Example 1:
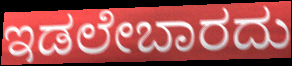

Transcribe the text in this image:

ಇಡಲೇಬಾರದು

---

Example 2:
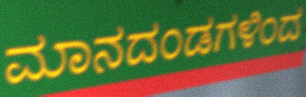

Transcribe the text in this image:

ಮಾನದಂಡಗಳಿಂದ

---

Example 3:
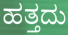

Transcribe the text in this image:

ಹತ್ತದು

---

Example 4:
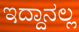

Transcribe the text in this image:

ಇದ್ದಾನಲ್ಲ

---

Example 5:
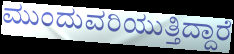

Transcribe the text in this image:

ಮುಂದುವರಿಯುತ್ತಿದ್ದಾರೆ